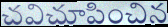
చవిచూపించిన